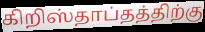
கிறிஸ்தாப்தத்திற்கு